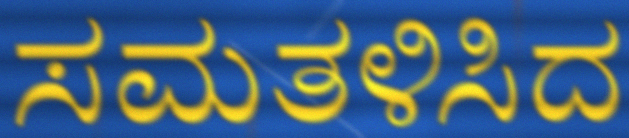
ಸಮತಳಿಸಿದ